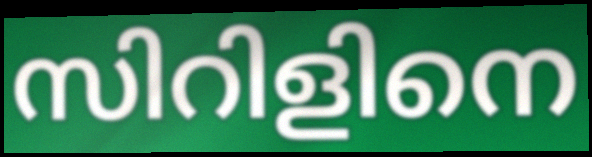
സിറിളിനെ